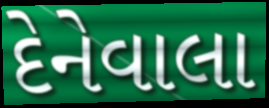
દેનેવાલા